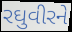
રઘુવીરને